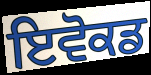
ਇਵੋਕਡ